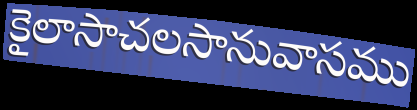
కైలాసాచలసానువాసము